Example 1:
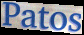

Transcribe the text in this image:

Patos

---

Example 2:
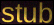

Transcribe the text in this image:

stub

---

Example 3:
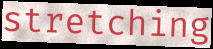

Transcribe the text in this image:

stretching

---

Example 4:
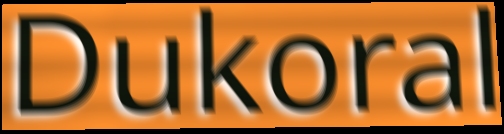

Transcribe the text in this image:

Dukoral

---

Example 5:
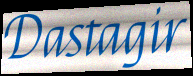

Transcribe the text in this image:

Dastagir